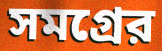
সমগ্রের